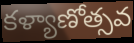
కళ్యాణోత్సవ